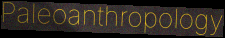
Paleoanthropology